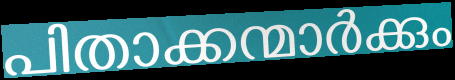
പിതാക്കന്മാർക്കും